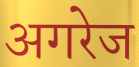
अगरेज